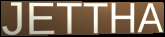
JETTHA